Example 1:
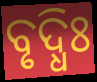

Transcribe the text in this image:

ବୃଦ୍ଧିଃ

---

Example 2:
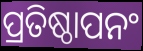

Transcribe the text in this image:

ପ୍ରତିଷ୍ଠାପନଂ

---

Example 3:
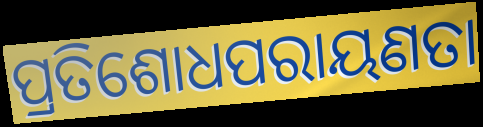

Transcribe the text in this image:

ପ୍ରତିଶୋଧପରାୟଣତା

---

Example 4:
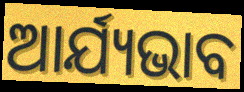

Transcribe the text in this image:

ଆର୍ଯ୍ୟଭାବ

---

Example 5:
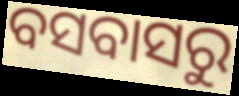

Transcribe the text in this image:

ବସବାସରୁ